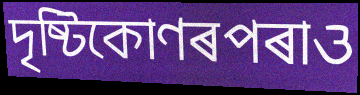
দৃষ্টিকোণৰপৰাও